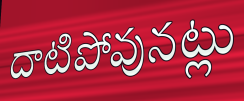
దాటిపోవునట్లు